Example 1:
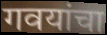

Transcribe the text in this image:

गवयांचा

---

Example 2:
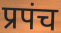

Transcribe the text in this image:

प्रपंच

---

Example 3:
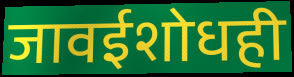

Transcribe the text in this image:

जावईशोधही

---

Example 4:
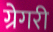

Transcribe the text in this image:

ग्रेगरी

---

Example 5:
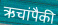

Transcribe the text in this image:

ऋचांपैकी